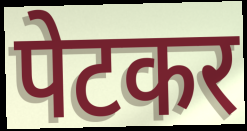
पेटकर